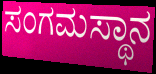
ಸಂಗಮಸ್ಥಾನ